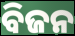
ବିଜନ